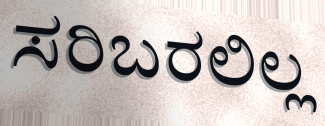
ಸರಿಬರಲಿಲ್ಲ